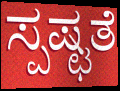
ಸ್ಪಷ್ಟತೆ